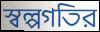
স্বল্পগতির